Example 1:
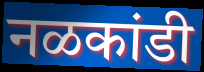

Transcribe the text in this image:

नळकांडी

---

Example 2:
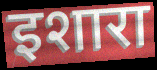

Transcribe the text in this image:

इशारा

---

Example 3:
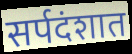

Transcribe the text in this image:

सर्पदंशात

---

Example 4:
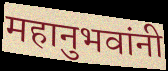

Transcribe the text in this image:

महानुभवांनी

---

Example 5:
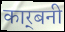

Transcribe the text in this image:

कार्बनी